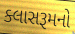
ક્લાસરૂમનો